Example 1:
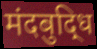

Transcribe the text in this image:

मंदबुद्धि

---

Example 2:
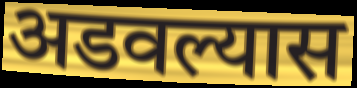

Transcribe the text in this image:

अडवल्यास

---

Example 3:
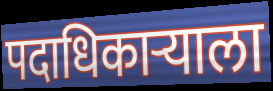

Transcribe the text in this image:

पदाधिकाऱ्याला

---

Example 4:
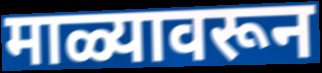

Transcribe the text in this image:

माळ्यावरून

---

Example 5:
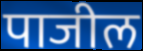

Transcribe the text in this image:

पाजील